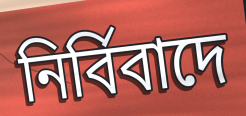
নিৰ্বিবাদে